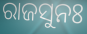
ରାଜସୁନଃ